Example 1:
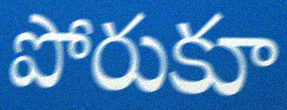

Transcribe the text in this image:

పోరుకూ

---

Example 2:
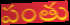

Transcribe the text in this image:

పంతు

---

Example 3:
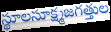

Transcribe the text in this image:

స్థూలసూక్ష్మజగత్తుల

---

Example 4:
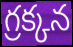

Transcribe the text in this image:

గ్రక్కన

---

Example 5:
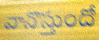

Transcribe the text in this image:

వానొస్తుందో